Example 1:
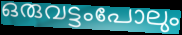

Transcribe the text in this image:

ഒരുവട്ടംപോലും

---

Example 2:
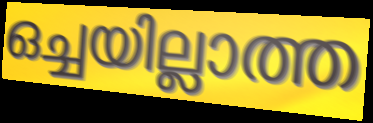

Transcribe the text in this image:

ഒച്ചയില്ലാത്ത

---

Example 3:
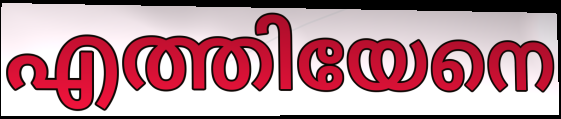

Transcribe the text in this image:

എത്തിയേനെ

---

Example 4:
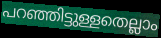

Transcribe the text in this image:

പറഞ്ഞിട്ടുള്ളതെല്ലാം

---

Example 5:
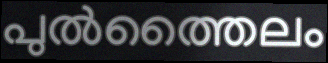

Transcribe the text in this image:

പുൽത്തൈലം